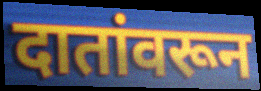
दातांवरून